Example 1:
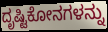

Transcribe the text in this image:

ದೃಷ್ಟಿಕೋನಗಳನ್ನು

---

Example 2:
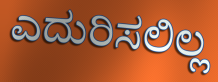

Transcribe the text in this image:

ಎದುರಿಸಲಿಲ್ಲ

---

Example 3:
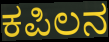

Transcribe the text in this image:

ಕಪಿಲನ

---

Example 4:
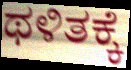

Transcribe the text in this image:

ಥಳಿತಕ್ಕೆ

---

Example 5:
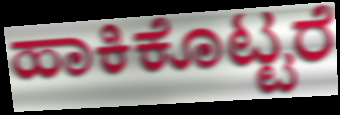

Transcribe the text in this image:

ಹಾಕಿಕೊಟ್ಟರೆ